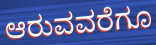
ಆರುವವರೆಗೂ